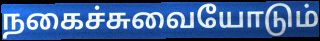
நகைச்சுவையோடும்